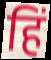
हिं